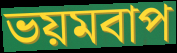
ভয়মবাপ